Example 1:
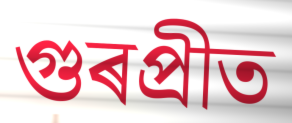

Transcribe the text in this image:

গুৰপ্ৰীত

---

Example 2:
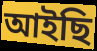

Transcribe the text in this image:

আইছি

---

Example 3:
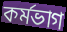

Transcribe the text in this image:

কৰ্মভাগ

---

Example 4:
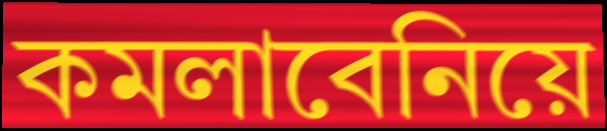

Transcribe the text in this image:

কমলাবেনিয়ে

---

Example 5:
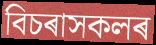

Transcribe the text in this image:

বিচৰাসকলৰ